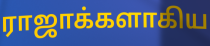
ராஜாக்களாகிய